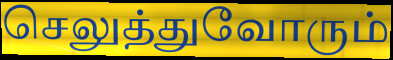
செலுத்துவோரும்